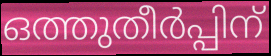
ഒത്തുതീർപ്പിന്